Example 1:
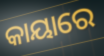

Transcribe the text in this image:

କାୟାରେ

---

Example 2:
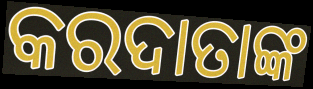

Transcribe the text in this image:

କରଦାତାଙ୍କ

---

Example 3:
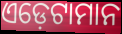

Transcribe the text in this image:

ଏଡ଼େଟାମାନ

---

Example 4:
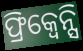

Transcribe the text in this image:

ଫ୍ରିକ୍ୱେନ୍ସି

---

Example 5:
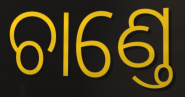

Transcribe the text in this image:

ଚାଣ୍ତେ